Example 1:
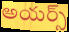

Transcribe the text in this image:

అయర్స్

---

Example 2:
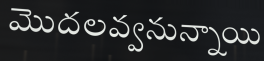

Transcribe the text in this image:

మొదలవ్వనున్నాయి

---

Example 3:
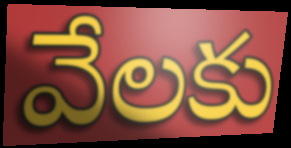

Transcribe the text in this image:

వేలకు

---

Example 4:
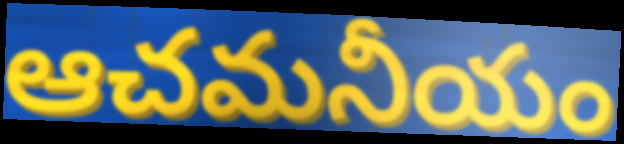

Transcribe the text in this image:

ఆచమనీయం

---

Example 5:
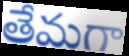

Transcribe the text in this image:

తేమగా